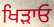
ਖਿੜਾਓ